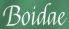
Boidae